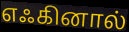
எஃகினால்